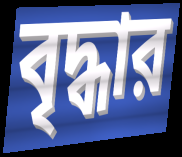
বৃদ্ধার